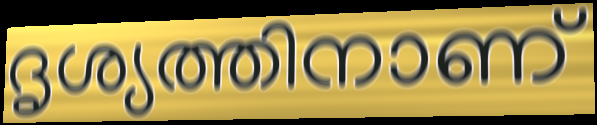
ദൃശ്യത്തിനാണ്